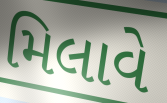
મિલાવે